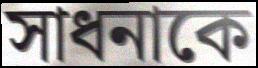
সাধনাকে